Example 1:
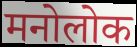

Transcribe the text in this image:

मनोलोक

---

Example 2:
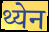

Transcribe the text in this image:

थ्येन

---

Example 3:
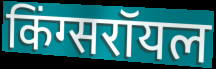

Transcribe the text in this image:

किंग्सरॉयल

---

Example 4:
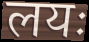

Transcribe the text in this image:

लयः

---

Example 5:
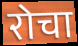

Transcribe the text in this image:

रोचा